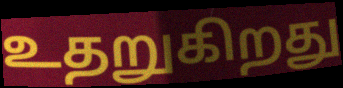
உதறுகிறது